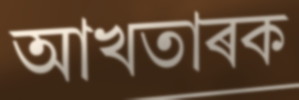
আখতাৰক